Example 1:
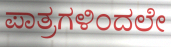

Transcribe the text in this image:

ಪಾತ್ರಗಳಿಂದಲೇ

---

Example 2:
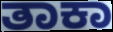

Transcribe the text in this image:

ತಾಕಾ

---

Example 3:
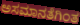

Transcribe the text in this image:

ಅಸಮಾನತೆಗಿಂತ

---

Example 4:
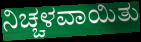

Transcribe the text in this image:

ನಿಚ್ಚಳವಾಯಿತು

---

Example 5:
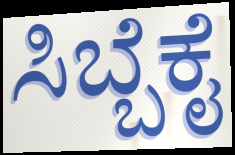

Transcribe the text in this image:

ಸಿಬ್ಬೆಕೈ